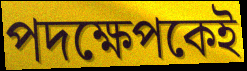
পদক্ষেপকেই